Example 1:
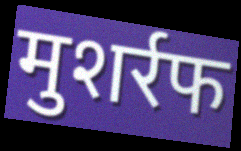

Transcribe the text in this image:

मुशर्रफ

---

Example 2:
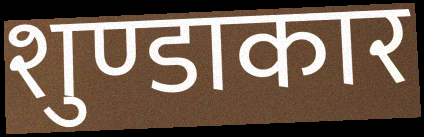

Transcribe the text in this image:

शुण्डाकार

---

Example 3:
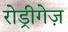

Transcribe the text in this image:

रोड्रीगेज़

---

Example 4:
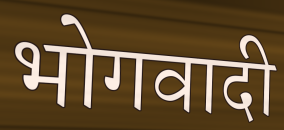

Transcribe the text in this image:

भोगवादी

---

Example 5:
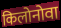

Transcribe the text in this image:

किलोनोवा